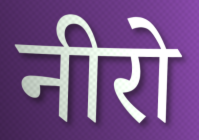
नीरो